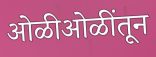
ओळीओळींतून